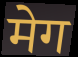
मेग